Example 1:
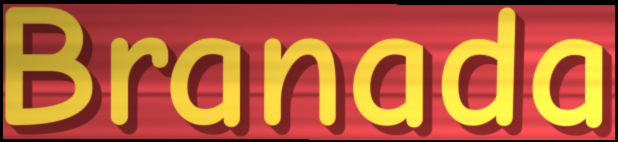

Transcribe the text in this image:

Branada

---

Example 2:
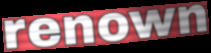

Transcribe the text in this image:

renown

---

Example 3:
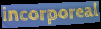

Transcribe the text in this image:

incorporeal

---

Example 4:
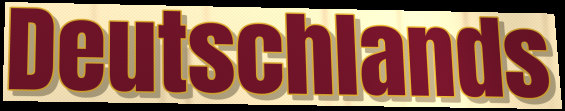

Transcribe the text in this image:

Deutschlands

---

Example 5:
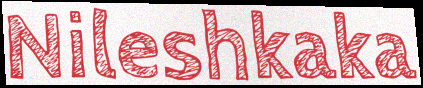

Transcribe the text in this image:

Nileshkaka